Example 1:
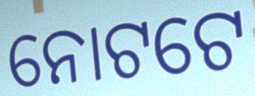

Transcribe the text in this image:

ନୋଟଟେ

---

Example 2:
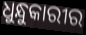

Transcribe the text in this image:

ଧୁନ୍ଧୁକାରୀର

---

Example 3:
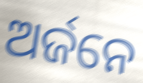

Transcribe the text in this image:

ଅର୍ଜନେ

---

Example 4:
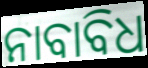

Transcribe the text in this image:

ନାବାବିଧ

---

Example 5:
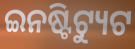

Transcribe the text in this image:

ଇନଷ୍ଟିଟ୍ୟୁଟ